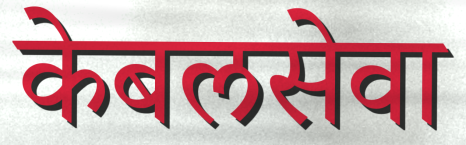
केबलसेवा